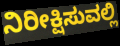
ನಿರೀಕ್ಷಿಸುವಲ್ಲಿ